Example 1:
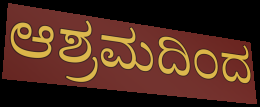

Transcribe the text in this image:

ಆಶ್ರಮದಿಂದ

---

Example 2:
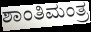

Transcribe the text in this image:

ಶಾಂತಿಮಂತ್ರ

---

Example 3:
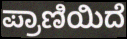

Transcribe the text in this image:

ಪ್ರಾಣಿಯಿದೆ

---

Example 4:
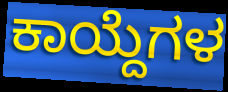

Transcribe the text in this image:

ಕಾಯ್ದೆಗಳ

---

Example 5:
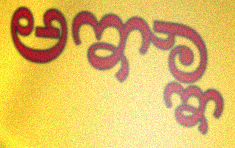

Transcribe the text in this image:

ಅಞ್ಞಾ